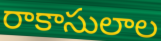
రాకాసులాల